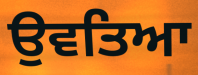
ਉਵਤਿਆ